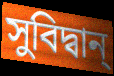
সুবিদ্বান্